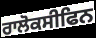
ਰਾਲੋਕਸੀਫਿਨ